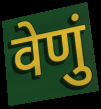
वेणुं